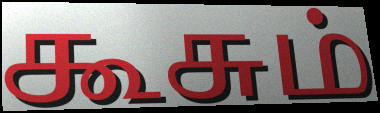
கூசும்